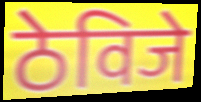
ठेविजे